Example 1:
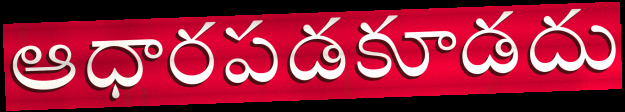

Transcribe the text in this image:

ఆధారపడకూడదు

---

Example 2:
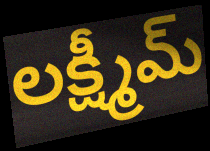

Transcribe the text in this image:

లక్ష్మీమ్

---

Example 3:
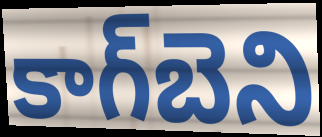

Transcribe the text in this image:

కాగ్‌బెని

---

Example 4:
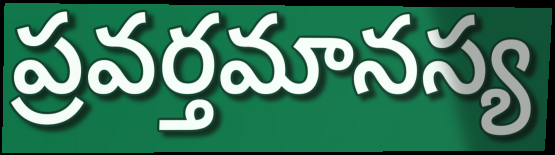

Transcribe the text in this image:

ప్రవర్తమానస్య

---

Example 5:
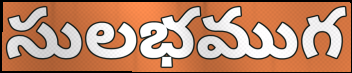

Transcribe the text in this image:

సులభముగ